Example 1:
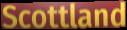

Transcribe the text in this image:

Scottland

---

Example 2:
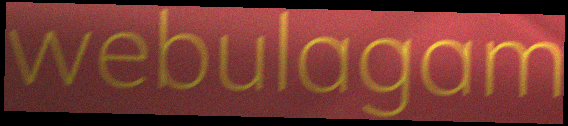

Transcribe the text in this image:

webulagam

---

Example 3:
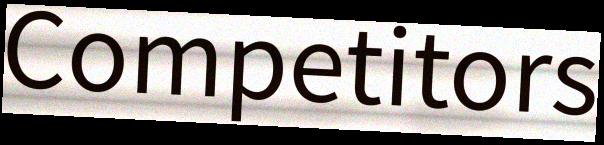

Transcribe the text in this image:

Competitors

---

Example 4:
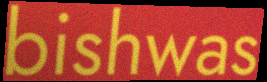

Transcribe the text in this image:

bishwas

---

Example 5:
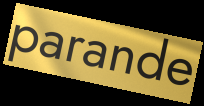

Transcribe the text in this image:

parande